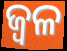
ଜ୍ୱଳ